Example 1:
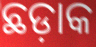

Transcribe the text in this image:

ଛଡ଼ାକ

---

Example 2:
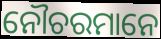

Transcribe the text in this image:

ନୌଚରମାନେ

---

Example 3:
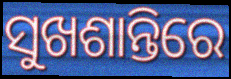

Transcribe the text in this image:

ସୁଖଶାନ୍ତିରେ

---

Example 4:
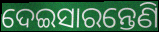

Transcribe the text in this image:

ଦେଇସାରନ୍ତେଣି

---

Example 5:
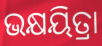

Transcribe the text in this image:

ଭକ୍ଷୟିତ୍ରା